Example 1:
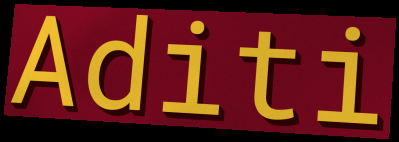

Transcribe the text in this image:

Aditi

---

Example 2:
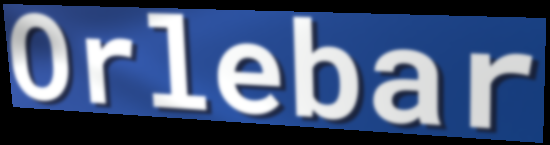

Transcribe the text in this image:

Orlebar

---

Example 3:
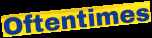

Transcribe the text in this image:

Oftentimes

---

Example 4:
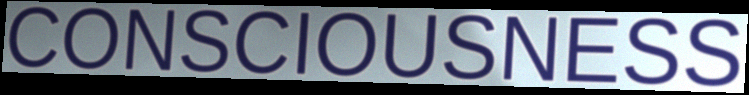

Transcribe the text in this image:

CONSCIOUSNESS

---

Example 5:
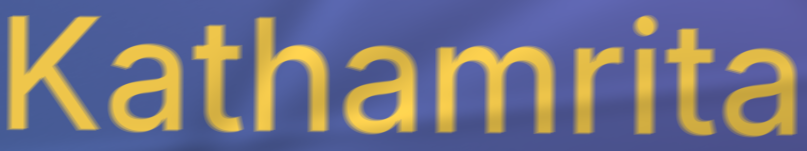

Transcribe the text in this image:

Kathamrita